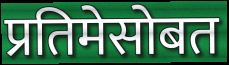
प्रतिमेसोबत